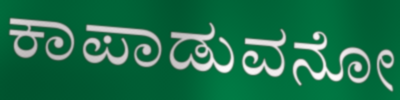
ಕಾಪಾಡುವನೋ